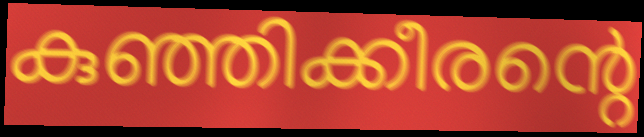
കുഞ്ഞിക്കീരന്റെ